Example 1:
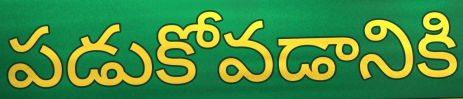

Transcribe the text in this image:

పడుకోవడానికి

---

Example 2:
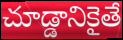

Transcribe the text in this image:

చూడ్డానికైతే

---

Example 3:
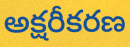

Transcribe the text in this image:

అక్షరీకరణ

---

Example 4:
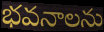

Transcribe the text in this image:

భవనాలను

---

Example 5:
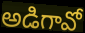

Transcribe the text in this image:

అడిగావో